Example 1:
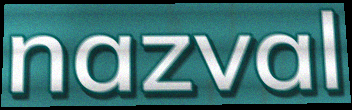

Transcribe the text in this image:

nazval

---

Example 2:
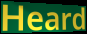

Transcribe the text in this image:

Heard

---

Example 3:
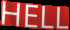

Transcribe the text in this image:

HELL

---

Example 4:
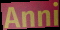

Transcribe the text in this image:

Anni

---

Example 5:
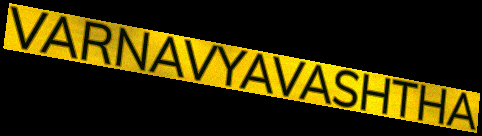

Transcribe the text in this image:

VARNAVYAVASHTHA